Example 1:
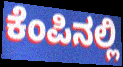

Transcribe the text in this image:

ಕೆಂಪಿನಲ್ಲಿ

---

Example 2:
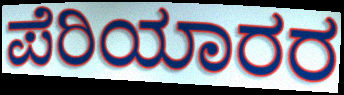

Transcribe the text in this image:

ಪೆರಿಯಾರರ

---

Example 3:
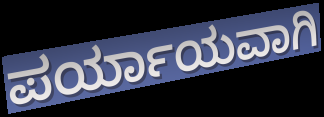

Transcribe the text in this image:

ಪರ್ಯಾಯವಾಗಿ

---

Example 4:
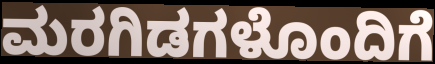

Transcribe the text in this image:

ಮರಗಿಡಗಳೊಂದಿಗೆ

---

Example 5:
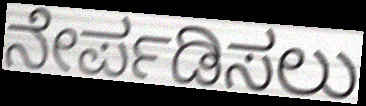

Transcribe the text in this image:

ನೇರ್ಪಡಿಸಲು